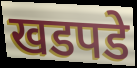
खडपडे